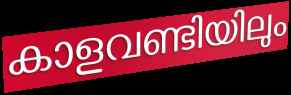
കാളവണ്ടിയിലും